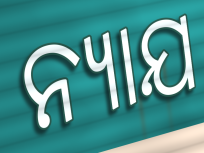
ନ୍ୟାଯ